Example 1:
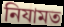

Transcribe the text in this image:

নিযামত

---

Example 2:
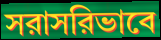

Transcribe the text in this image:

সরাসরিভাবে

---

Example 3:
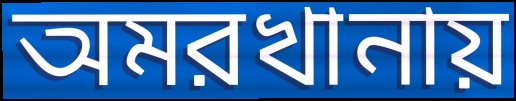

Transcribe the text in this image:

অমরখানায়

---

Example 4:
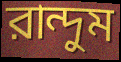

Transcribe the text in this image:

রান্দুম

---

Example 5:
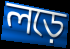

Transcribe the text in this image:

লড়ে